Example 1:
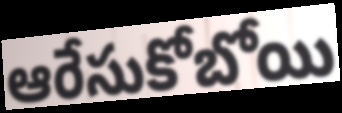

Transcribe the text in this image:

ఆరేసుకోబోయి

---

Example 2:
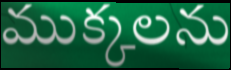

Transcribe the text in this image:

ముక్కలను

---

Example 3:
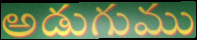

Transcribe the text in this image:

అడుగుము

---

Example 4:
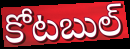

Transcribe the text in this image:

కోటబుల్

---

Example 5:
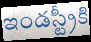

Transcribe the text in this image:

ఇండస్ట్రీకి